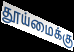
தூய்மைக்கு